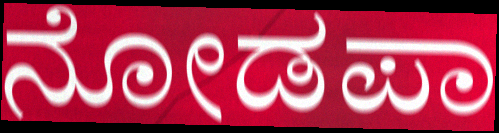
ನೋಡಪಾ